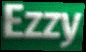
Ezzy